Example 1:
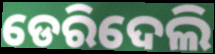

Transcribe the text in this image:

ଡେରିଦେଲି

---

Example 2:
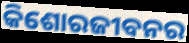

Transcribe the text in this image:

କିଶୋରଜୀବନର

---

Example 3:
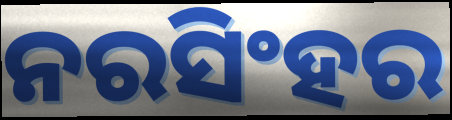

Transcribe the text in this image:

ନରସିଂହର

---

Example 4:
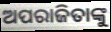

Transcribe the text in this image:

ଅପରାଜିତାଙ୍କୁ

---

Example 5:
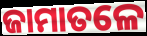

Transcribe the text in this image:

ଜାମାତଳେ